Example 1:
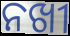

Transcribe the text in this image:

ନଖୀ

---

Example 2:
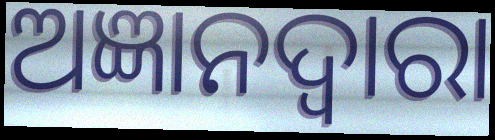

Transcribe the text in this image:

ଅଜ୍ଞାନଦ୍ଵାରା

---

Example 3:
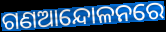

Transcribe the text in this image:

ଗଣଆନ୍ଦୋଳନରେ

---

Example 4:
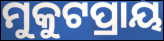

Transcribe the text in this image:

ମୁକୁଟପ୍ରାୟ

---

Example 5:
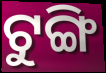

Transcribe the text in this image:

ଟୁଙ୍ଗି